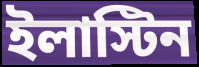
ইলাস্টিন